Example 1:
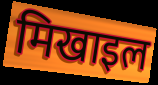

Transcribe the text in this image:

मिखाइल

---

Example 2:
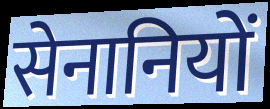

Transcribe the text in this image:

सेनानियों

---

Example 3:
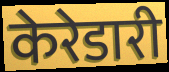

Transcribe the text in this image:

केरेडारी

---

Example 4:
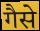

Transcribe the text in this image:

गैसे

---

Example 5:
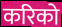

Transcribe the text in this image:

करिको